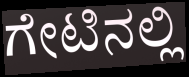
ಗೇಟಿನಲ್ಲಿ